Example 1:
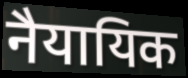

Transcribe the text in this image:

नैयायिक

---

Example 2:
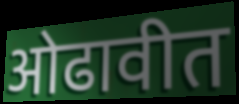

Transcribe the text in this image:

ओढावीत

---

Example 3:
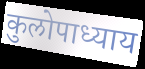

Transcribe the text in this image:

कुलोपाध्याय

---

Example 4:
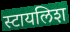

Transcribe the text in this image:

स्टायलिश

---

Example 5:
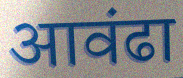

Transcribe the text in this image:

आवंढा